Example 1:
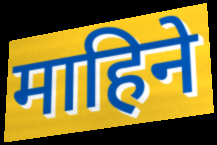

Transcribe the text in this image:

माहिने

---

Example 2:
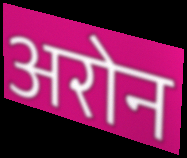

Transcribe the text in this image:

अरोन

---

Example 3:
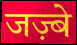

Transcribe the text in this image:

जज़्बे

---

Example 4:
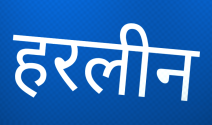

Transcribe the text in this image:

हरलीन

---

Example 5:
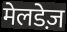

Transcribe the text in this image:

मेलडेज़